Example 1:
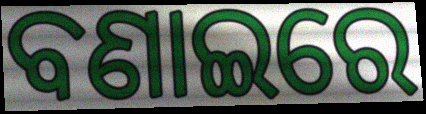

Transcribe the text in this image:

ବଣାଇରେ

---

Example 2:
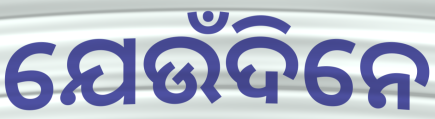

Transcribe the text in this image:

ଯେଉଁଦିନେ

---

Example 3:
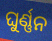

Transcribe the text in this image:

ଘୁର୍ଣ୍ଣନ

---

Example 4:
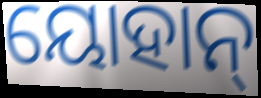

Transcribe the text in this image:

ୟୋହାନ୍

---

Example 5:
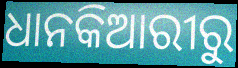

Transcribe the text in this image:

ଧାନକିଆରୀରୁ